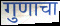
गुणाचा